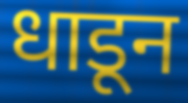
धाडून